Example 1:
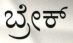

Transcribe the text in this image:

ಬ್ರೇಕ್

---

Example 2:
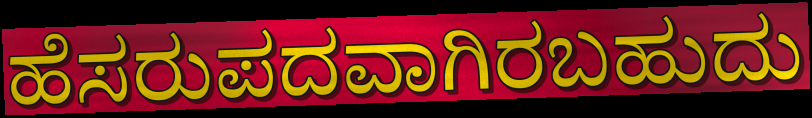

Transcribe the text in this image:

ಹೆಸರುಪದವಾಗಿರಬಹುದು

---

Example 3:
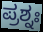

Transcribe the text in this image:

ಪ್ರಶ್ನಃ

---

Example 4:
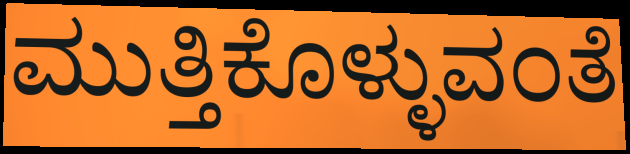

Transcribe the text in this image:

ಮುತ್ತಿಕೊಳ್ಳುವಂತೆ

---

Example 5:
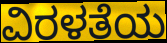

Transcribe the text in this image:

ವಿರಳತೆಯ